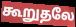
கூறுதலே